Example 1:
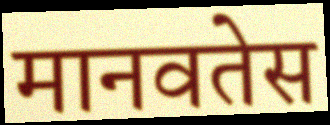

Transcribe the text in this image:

मानवतेस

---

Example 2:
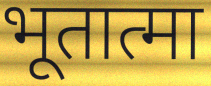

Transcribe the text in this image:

भूतात्मा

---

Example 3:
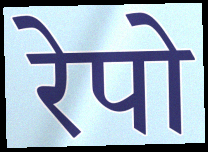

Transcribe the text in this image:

रेपो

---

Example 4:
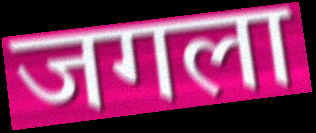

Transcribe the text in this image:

जगला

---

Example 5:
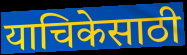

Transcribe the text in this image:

याचिकेसाठी